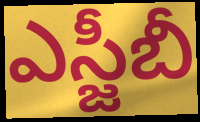
ఎస్జీబీ